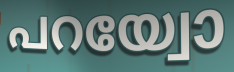
പറയ്വോ